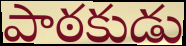
పాఠకుడు